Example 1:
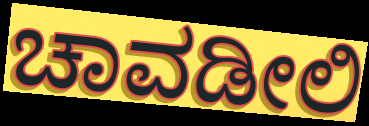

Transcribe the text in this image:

ಚಾವಡೀಲಿ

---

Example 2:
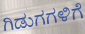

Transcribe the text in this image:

ಗಿಡುಗಗಳಿಗೆ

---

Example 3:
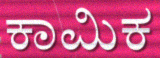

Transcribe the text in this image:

ಕಾಮಿಕ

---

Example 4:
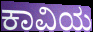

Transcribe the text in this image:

ಕಾವಿಯ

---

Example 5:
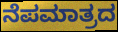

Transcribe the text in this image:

ನೆಪಮಾತ್ರದ